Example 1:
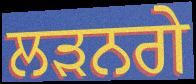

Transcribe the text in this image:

ਲੜਨਗੇ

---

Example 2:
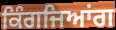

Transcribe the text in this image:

ਕਿੰਗਜਿਆਂਗ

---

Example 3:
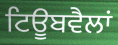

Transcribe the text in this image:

ਟਿਊਬਵੈਲਾਂ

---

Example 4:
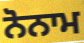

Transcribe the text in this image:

ਨੋਨਾਮ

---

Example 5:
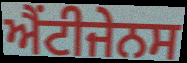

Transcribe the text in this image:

ਐਂਟੀਜੇਨਸ